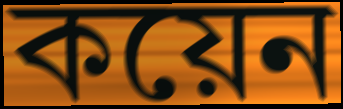
কয়েন